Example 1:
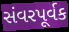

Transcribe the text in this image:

સંવરપૂર્વક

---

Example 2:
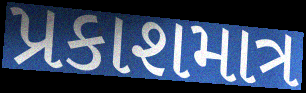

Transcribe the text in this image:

પ્રકાશમાત્ર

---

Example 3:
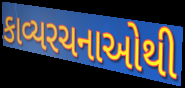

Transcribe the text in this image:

કાવ્યરચનાઓથી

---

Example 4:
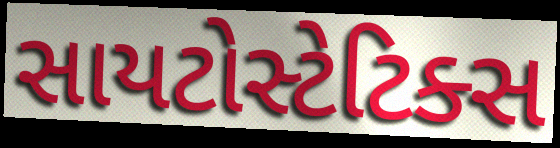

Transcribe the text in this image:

સાયટોસ્ટેટિક્સ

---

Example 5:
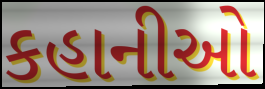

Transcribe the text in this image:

કહાનીઓ